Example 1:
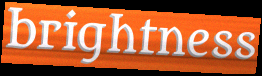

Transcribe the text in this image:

brightness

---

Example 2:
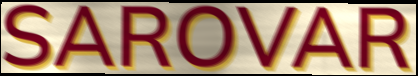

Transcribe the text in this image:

SAROVAR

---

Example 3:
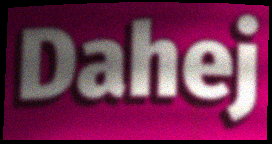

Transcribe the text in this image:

Dahej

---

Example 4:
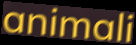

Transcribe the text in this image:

animali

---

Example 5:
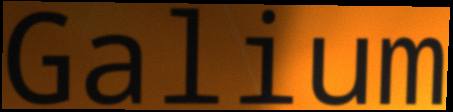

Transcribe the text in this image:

Galium